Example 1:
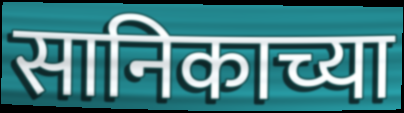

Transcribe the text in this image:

सानिकाच्या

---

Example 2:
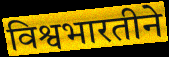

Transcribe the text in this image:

विश्वभारतीने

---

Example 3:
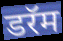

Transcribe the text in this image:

डरॅम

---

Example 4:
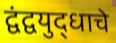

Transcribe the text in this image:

द्वंद्वयुद्धाचे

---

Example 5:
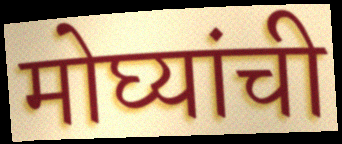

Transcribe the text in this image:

मोघ्यांची